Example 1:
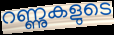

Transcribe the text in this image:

റണ്ണുകളുടെ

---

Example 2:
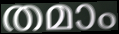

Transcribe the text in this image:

തമാം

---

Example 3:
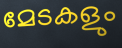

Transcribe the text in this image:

മേടകളും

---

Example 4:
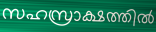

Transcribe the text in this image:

സഹസ്രാക്ഷത്തിൽ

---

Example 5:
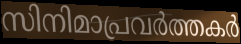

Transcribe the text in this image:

സിനിമാപ്രവർത്തകർ